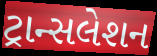
ટ્રાન્સલેશન